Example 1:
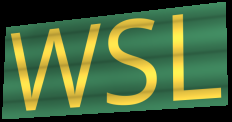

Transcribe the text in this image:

WSL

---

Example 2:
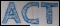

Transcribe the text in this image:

ACT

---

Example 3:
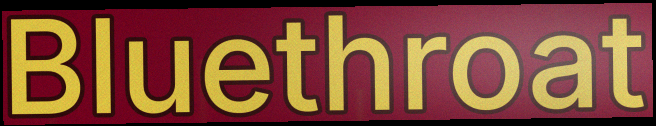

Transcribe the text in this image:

Bluethroat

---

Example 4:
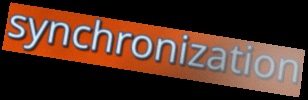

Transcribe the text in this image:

synchronization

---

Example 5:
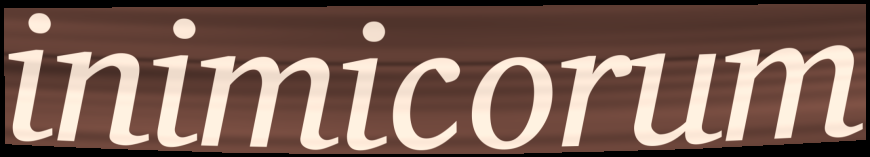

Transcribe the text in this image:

inimicorum